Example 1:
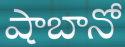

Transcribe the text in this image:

షాబానో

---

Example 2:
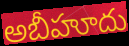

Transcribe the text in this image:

అబీహూదు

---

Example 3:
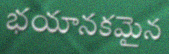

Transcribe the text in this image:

భయానకమైన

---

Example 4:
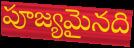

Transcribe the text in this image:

పూజ్యమైనది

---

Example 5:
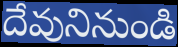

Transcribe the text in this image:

దేవునినుండి